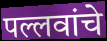
पल्लवांचे